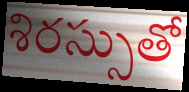
శిరస్సుతో